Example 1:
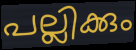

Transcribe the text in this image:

പല്ലിക്കും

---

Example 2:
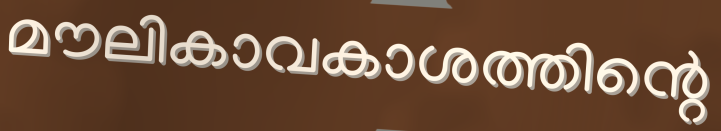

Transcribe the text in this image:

മൗലികാവകാശത്തിന്റെ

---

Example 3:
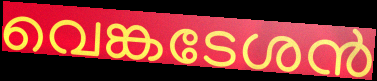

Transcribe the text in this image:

വെങ്കടേശൻ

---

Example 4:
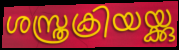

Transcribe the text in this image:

ശസ്ത്രക്രിയയ്ക്കു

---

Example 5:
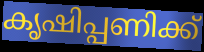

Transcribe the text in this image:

കൃഷിപ്പണിക്ക്